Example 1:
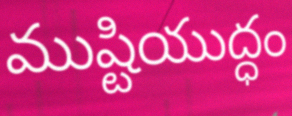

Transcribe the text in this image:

ముష్టియుద్ధం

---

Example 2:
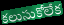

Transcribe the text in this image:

కలుసుకోలేక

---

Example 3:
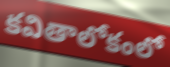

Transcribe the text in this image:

కవితాలోకంలో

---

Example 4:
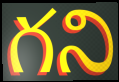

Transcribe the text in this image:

గని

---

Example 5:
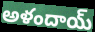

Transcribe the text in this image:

అళందాయ్